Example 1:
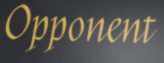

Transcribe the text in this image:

Opponent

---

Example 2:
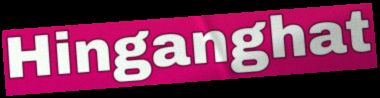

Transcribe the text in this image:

Hinganghat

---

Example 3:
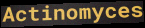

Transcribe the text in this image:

Actinomyces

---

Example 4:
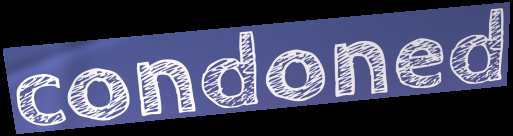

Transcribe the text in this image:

condoned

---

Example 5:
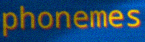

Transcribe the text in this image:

phonemes